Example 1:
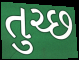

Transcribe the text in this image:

તુચ્છ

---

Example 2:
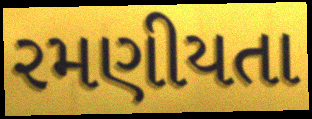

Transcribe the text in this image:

રમણીયતા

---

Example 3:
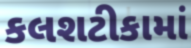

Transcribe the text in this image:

કલશટીકામાં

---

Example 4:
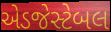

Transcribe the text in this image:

એડજેસ્ટેબલ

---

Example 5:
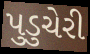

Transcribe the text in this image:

પુડુચેરી